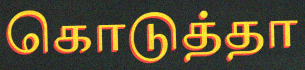
கொடுத்தா